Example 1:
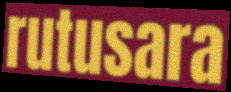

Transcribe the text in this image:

rutusara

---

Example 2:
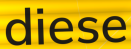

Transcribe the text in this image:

diese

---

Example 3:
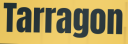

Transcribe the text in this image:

Tarragon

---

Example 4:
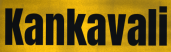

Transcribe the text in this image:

Kankavali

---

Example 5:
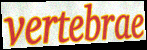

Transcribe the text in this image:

vertebrae